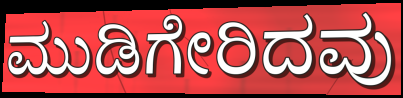
ಮುಡಿಗೇರಿದವು